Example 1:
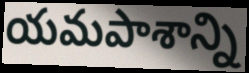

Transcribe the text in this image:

యమపాశాన్ని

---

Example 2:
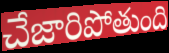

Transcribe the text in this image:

చేజారిపోతుంది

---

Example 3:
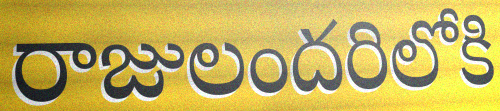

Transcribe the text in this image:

రాజులందరిలోకి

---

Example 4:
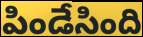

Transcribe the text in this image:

పిండేసింది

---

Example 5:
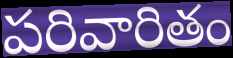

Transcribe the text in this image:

పరివారితం